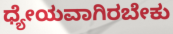
ಧ್ಯೇಯವಾಗಿರಬೇಕು